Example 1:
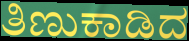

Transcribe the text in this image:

ತಿಣುಕಾಡಿದ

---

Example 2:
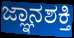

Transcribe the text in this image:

ಜ್ಞಾನಶಕ್ತಿ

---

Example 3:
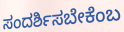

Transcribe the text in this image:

ಸಂದರ್ಶಿಸಬೇಕೆಂಬ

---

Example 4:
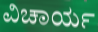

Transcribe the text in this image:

ವಿಚಾರ್ಯ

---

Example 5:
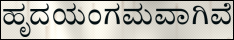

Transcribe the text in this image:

ಹೃದಯಂಗಮವಾಗಿವೆ